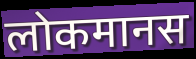
लोकमानस